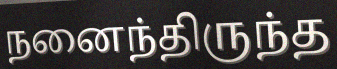
நனைந்திருந்த